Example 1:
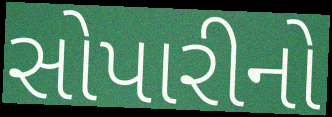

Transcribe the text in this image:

સોપારીનો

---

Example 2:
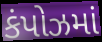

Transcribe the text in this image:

કંપોઝમાં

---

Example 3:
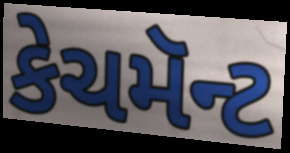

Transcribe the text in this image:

કેચમૅન્ટ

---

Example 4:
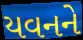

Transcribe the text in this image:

યવનને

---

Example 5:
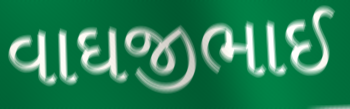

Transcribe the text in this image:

વાઘજીભાઈ